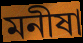
মনীষা